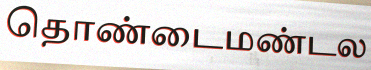
தொண்டைமண்டல